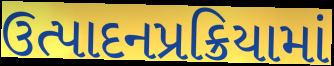
ઉત્પાદનપ્રક્રિયામાં